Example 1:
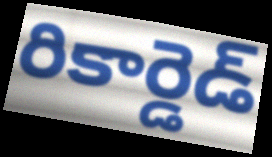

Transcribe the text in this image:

రికార్డెడ్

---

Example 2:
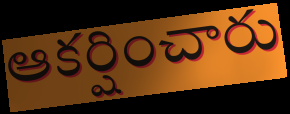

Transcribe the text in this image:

ఆకర్షించారు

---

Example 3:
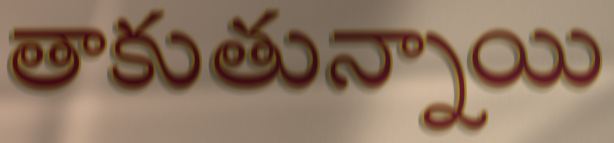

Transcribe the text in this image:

తాకుతున్నాయి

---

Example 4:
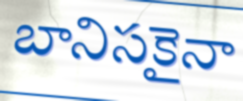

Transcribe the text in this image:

బానిసకైనా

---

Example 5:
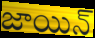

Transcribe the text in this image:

జాయిన్